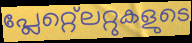
പ്ലേറ്റ്ലെറ്റുകളുടെ